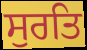
ਸੁਰਤਿ